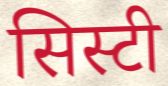
सिस्टी